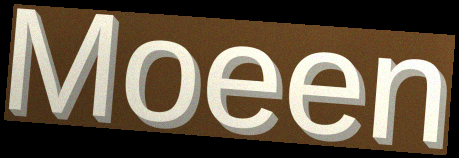
Moeen